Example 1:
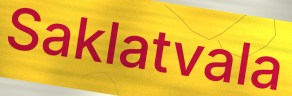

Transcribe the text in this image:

Saklatvala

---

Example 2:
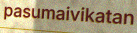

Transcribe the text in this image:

pasumaivikatan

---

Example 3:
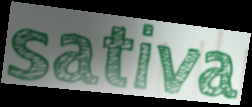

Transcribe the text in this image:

sativa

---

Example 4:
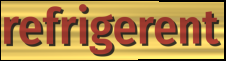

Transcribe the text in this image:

refrigerent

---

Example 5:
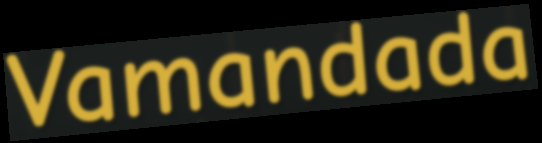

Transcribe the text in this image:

Vamandada